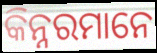
କିନ୍ନରମାନେ